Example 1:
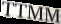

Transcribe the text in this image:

TTMM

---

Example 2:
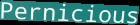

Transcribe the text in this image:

Pernicious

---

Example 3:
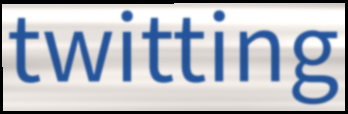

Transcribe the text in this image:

twitting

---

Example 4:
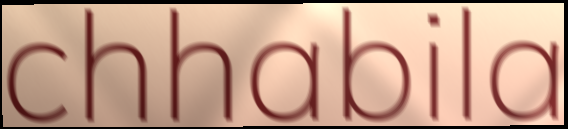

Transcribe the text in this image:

chhabila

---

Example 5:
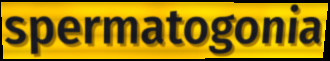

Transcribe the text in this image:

spermatogonia